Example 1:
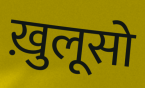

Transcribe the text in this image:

ख़ुलूसो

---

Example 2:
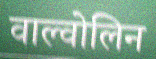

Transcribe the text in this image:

वाल्वोलिन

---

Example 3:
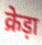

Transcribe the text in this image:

क्रेड़ा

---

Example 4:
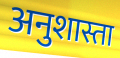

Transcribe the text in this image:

अनुशास्ता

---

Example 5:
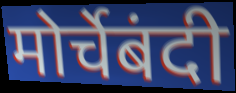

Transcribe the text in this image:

मोर्चेबंदी